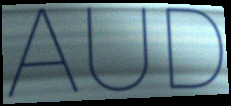
AUD